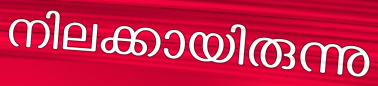
നിലക്കായിരുന്നു